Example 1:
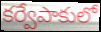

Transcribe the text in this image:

కర్వేపాకులో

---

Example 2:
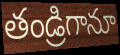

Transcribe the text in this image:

తండ్రిగానూ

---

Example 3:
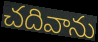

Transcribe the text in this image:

చదివాను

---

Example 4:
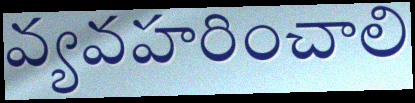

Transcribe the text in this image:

వ్యవహరించాలి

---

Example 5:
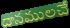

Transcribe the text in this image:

దానములచే